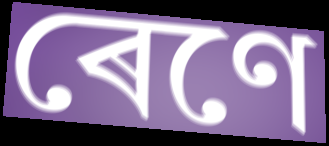
ৰেণে